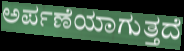
ಅರ್ಪಣೆಯಾಗುತ್ತದೆ